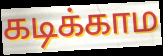
கடிக்காம